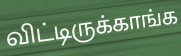
விட்டிருக்காங்க